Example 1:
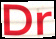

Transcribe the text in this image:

Dr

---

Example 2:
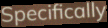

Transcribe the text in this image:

Specifically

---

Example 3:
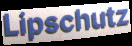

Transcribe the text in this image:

Lipschutz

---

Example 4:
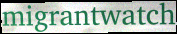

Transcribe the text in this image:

migrantwatch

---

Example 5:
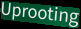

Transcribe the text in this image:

Uprooting